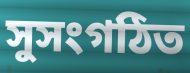
সুসংগঠিত